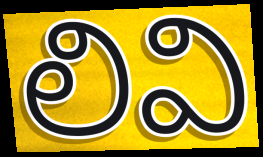
లివి